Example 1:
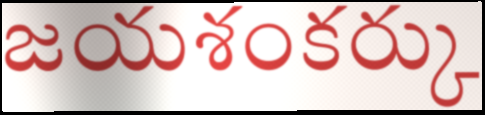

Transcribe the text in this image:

జయశంకర్కు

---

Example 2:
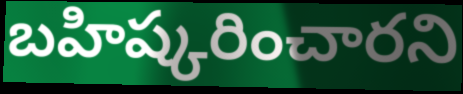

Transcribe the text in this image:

బహిష్కరించారని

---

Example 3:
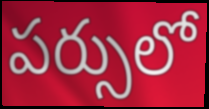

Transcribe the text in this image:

పర్సులో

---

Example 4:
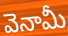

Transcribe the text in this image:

వెనామీ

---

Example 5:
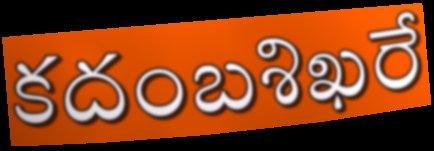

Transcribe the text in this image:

కదంబశిఖరే